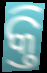
କ୍ତି